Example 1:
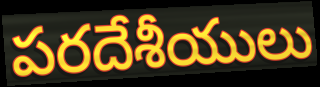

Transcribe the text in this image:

పరదేశీయులు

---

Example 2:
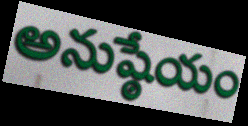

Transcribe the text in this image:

అనుష్ఠేయం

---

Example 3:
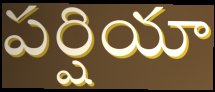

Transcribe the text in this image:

పర్షియా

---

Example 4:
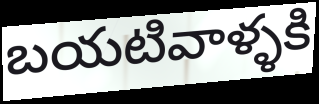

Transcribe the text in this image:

బయటివాళ్ళకి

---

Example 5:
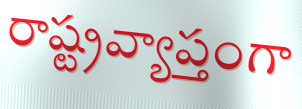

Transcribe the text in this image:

రాష్ట్రవ్యాప్తంగా